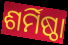
ଶର୍ମିଷ୍ଠା